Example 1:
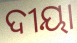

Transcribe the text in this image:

ଦୀୟା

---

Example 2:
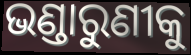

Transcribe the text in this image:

ଭଣ୍ଡାରୁଣୀକୁ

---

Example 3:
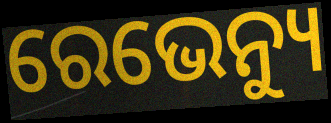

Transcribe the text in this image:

ରେଭେନ୍ୟୁ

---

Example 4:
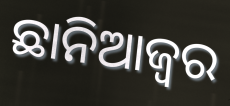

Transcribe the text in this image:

ଛାନିଆଜ୍ୱର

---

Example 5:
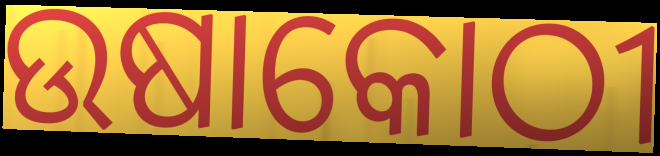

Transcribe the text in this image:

ଉଷାକୋଠୀ